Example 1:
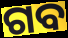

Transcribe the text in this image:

ଗବ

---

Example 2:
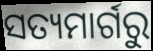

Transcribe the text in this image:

ସତ୍ୟମାର୍ଗରୁ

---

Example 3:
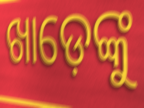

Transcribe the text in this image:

ଖାଡ଼େଙ୍କୁ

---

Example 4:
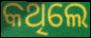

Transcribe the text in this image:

କଥିଲେ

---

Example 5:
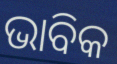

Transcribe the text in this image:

ଭାବିକ